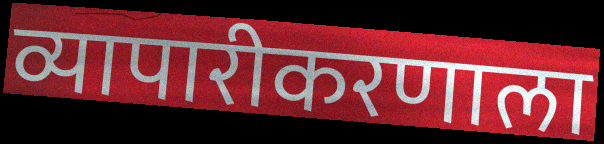
व्यापारीकरणाला